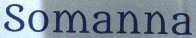
Somanna